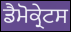
ਡੈਮੋਕ੍ਰੇਟਸ